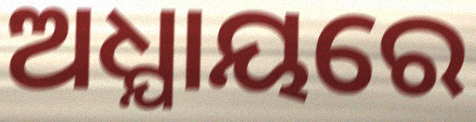
ଅଧ୍ଯାୟରେ